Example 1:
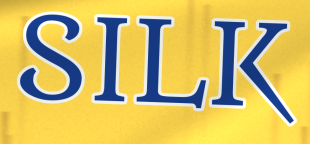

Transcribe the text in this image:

SILK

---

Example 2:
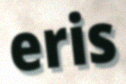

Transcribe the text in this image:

eris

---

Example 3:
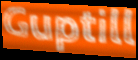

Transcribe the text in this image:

Guptill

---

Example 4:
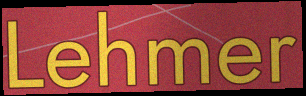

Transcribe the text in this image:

Lehmer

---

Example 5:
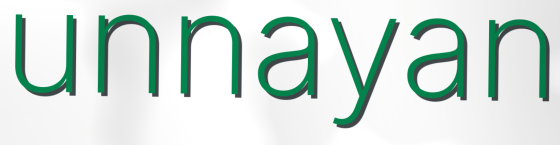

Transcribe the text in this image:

unnayan